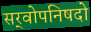
सर्वोपनिषदो